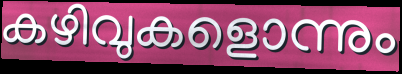
കഴിവുകളൊന്നും